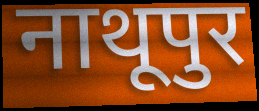
नाथूपुर